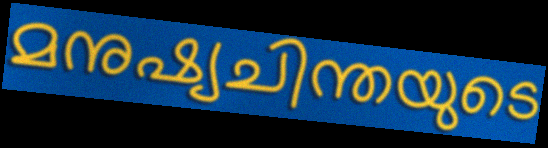
മനുഷ്യചിന്തയുടെ